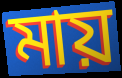
মায়